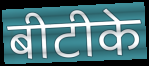
बीटीके